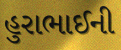
હુરાભાઈની